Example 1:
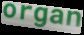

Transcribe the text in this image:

organ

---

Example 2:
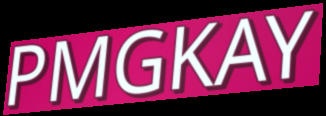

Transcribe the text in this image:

PMGKAY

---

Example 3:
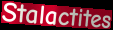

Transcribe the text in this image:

Stalactites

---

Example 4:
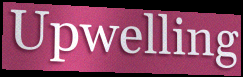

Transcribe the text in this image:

Upwelling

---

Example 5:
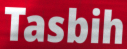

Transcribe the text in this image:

Tasbih